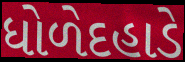
ધોળેદહાડે